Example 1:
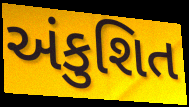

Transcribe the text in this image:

અંકુશિત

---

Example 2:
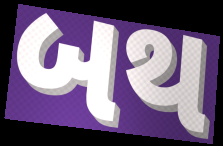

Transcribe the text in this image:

બથ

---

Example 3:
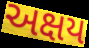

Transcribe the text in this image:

અક્ષય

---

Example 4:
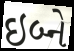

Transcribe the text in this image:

ઇબ્ને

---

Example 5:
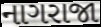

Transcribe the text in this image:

નાગરાજા